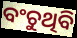
ବଂଚୁଥିବି